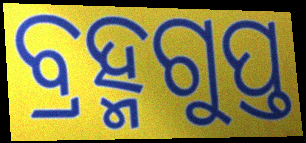
ବ୍ରହ୍ମଗୁପ୍ତ